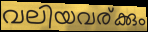
വലിയവര്ക്കും